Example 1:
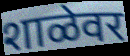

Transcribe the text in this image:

शाळेवर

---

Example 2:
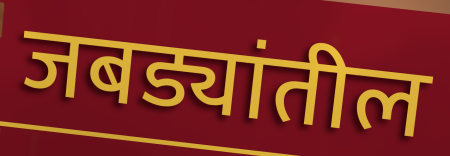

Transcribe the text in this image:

जबड्यांतील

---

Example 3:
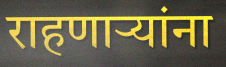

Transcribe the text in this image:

राहणाऱ्यांना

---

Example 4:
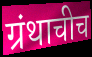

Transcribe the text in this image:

ग्रंथाचीच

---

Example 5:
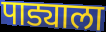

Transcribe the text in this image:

पाड्याला